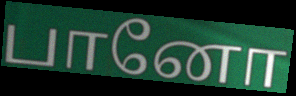
பானோ